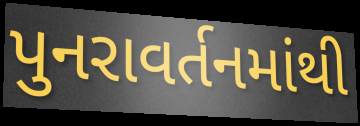
પુનરાવર્તનમાંથી